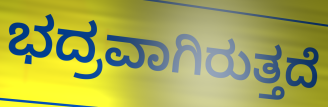
ಭದ್ರವಾಗಿರುತ್ತದೆ